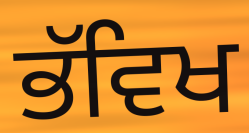
ਭੱਵਿਖ